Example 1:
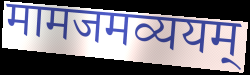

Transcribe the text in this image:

मामजमव्ययम्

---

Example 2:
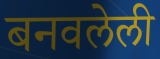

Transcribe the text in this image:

बनवलेली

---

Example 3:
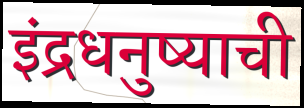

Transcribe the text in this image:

इंद्रधनुष्याची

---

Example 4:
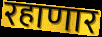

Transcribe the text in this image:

रहाणार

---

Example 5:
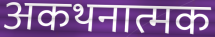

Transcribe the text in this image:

अकथनात्मक